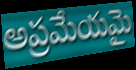
అప్రమేయమై